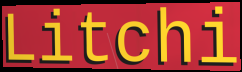
Litchi